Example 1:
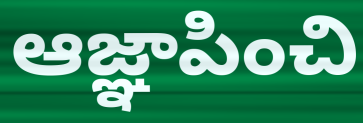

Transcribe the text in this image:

ఆజ్ఞాపించి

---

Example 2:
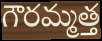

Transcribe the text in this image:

గౌరమ్మత్త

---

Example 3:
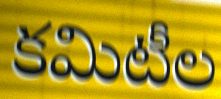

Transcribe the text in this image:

కమిటీల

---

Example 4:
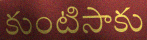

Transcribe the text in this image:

కుంటిసాకు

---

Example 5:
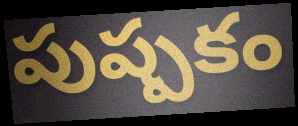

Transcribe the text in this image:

పుష్పకం